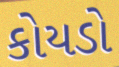
કોયડો